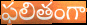
ఫలితంగా